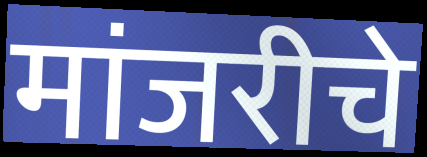
मांजरीचे